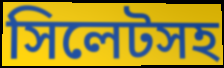
সিলেটসহ